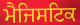
ਮੈਜਿਸਟਿਕ